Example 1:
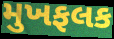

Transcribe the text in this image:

મુખફલક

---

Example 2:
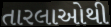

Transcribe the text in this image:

તારલાઓથી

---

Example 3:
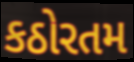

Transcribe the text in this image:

કઠોરતમ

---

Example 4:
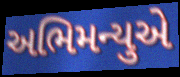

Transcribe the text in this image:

અભિમન્યુએ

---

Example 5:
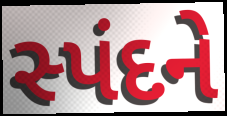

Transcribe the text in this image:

સ્પંદને